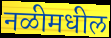
नळीमधील